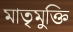
মাতৃমুক্তি